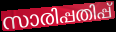
സാരിപ്പതിപ്പ്